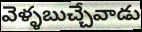
వెళ్ళబుచ్చేవాడు